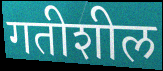
गतीशील